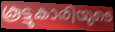
കൂട്ടുകാരിയുടെ